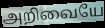
அறிவையே